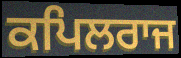
ਕਪਿਲਰਾਜ